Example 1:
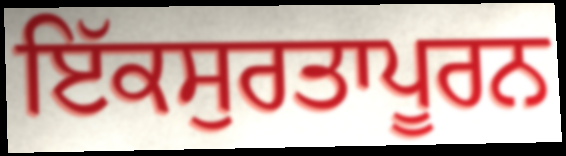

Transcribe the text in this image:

ਇੱਕਸੁਰਤਾਪੂਰਨ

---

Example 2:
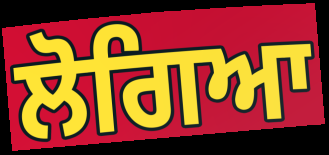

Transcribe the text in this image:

ਲੋਗਿਆ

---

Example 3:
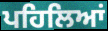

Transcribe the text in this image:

ਪਹਿਲਿਆਂ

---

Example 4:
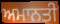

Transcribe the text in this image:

ਅਮਾਨਤੀ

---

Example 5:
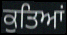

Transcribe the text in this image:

ਕੁਤਿਆਂ